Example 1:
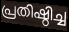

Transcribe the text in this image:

പ്രതിഷ്ഠിച്ച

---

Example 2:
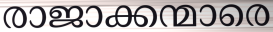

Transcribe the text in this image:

രാജാക്കന്മാരെ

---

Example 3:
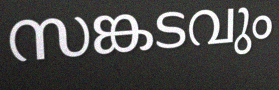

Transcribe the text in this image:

സങ്കടവും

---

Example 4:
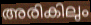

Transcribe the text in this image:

അരികിലും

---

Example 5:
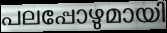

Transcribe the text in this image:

പലപ്പോഴുമായി